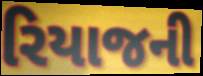
રિયાજની